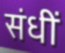
संधीं